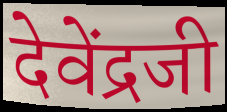
देवेंद्रजी